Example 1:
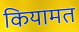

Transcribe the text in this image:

कियामत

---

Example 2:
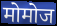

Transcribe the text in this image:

मोमोज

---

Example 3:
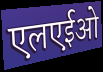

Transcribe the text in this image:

एलएईओ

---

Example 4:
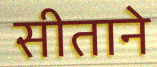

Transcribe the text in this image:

सीताने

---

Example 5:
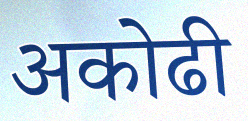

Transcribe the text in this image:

अकोढी